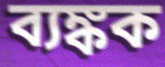
ব্যঙ্কক